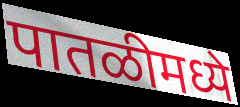
पातळीमध्ये